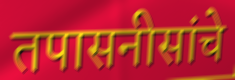
तपासनीसांचे